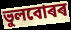
ভুলবোৰৰ